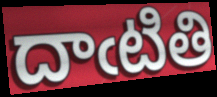
దాఁటితి